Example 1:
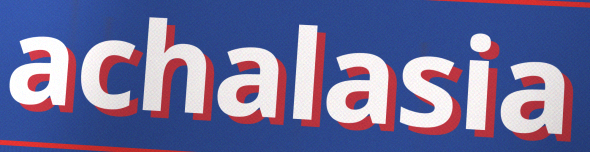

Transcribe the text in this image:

achalasia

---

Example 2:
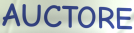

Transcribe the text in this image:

AUCTORE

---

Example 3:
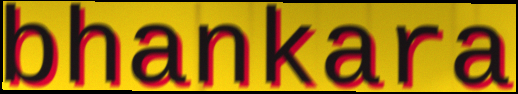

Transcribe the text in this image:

bhankara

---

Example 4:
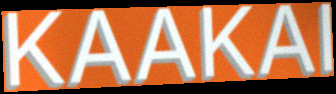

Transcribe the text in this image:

KAAKAI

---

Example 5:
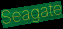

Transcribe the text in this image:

Seagate